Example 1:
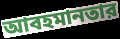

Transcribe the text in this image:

আবহমানতার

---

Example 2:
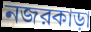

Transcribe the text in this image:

নজরকাড়া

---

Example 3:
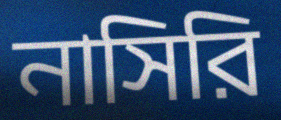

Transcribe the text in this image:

নাসিরি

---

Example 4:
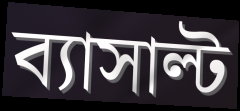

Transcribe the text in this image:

ব্যাসাল্ট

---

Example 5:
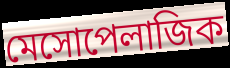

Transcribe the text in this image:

মেসোপেলাজিক